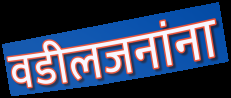
वडीलजनांना